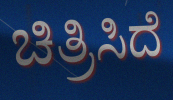
ಚಿತ್ರಿಸಿದೆ